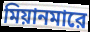
মিয়ানমারে